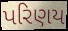
પરિણય